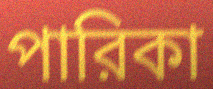
পারিকা